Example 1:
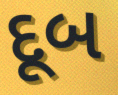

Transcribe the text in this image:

દૂબ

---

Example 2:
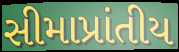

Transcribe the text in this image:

સીમાપ્રાંતીય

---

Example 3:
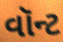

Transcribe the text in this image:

વૉન્ટ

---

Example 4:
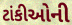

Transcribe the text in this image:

ટાંકીઓની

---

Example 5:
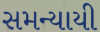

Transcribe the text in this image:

સમન્યાયી